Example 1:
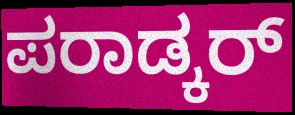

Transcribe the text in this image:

ಪರಾಡ್ಕರ್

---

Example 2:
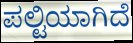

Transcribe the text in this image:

ಪಲ್ಟಿಯಾಗಿದೆ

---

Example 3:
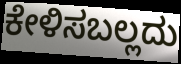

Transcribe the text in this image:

ಕೇಳಿಸಬಲ್ಲದು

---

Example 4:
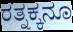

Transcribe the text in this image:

ರತ್ನಕ್ಕನೂ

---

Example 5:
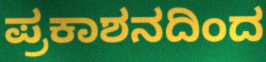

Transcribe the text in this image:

ಪ್ರಕಾಶನದಿಂದ